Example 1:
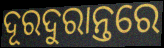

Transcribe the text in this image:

ଦୂରଦୁରାନ୍ତରେ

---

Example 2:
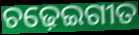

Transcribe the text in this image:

ଚଢ଼େଇଗୀତ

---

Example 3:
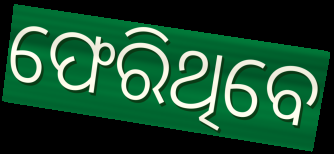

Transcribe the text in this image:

ଫେରିଥିବେ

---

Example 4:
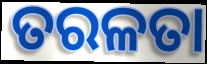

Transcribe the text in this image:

ତରଳତା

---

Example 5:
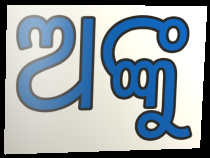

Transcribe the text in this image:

ଅଙ୍କୁ